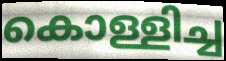
കൊള്ളിച്ച